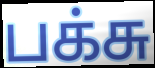
பக்சு